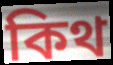
কিথ